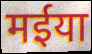
मईया